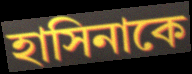
হাসিনাকে